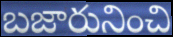
బజారునించి